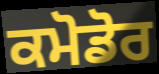
ਕਮੋਡੋਰ